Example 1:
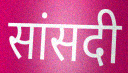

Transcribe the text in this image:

सांसदी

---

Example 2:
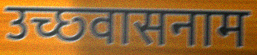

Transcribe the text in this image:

उच्छ्वासनाम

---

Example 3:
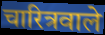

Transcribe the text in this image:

चारित्रवाले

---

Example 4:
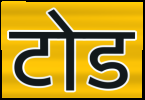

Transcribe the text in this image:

टोड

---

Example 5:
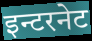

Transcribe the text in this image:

इन्‍टरनेट